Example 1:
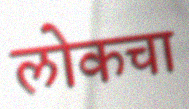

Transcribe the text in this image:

लोकचा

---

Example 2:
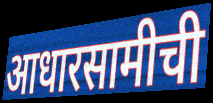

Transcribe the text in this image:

आधारसामीची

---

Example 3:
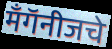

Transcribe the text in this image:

मँगॅनीजचे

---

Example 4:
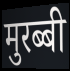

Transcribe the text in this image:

मुरब्बी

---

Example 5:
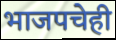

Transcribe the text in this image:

भाजपचेही